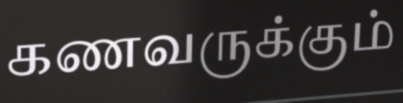
கணவருக்கும்